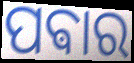
ପଵାର